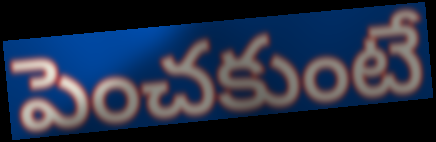
పెంచకుంటే